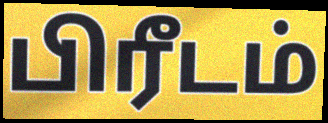
பிரீடம்